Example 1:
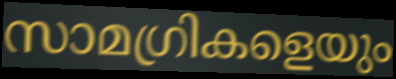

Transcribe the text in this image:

സാമഗ്രികളെയും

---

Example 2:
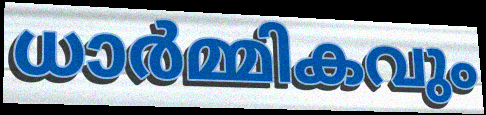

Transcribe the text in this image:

ധാർമ്മികവും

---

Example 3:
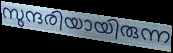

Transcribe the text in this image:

സുന്ദരിയായിരുന്ന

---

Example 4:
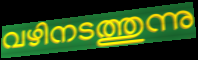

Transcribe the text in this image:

വഴിനടത്തുന്നു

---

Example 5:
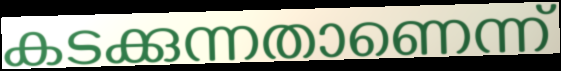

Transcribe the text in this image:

കടക്കുന്നതാണെന്ന്